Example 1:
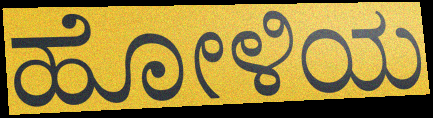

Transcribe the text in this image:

ಹೋಳಿಯ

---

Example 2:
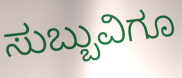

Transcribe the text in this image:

ಸುಬ್ಬುವಿಗೂ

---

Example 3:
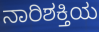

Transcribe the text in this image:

ನಾರಿಶಕ್ತಿಯ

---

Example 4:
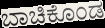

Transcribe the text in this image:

ಬಾಚಿಕೊಂಡ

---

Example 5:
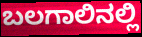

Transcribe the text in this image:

ಬಲಗಾಲಿನಲ್ಲಿ